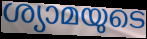
ശ്യാമയുടെ